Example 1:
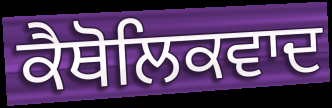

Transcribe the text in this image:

ਕੈਥੋਲਿਕਵਾਦ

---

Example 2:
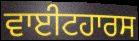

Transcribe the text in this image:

ਵਾਈਟਹਾਰਸ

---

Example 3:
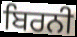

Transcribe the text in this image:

ਬਿਰਨੀ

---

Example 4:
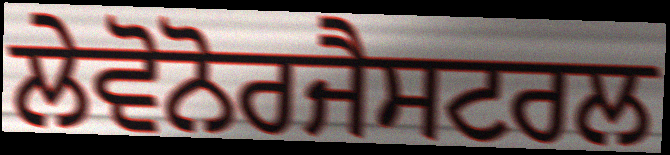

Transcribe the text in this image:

ਲੇਵੋਨੋਰਜੈਸਟਰਲ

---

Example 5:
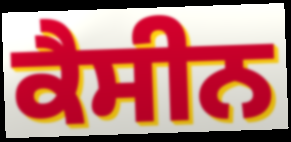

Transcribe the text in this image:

ਕੈਸੀਨ